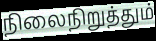
நிலைநிறுத்தும்